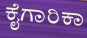
ಕೈಗಾರಿಕಾ